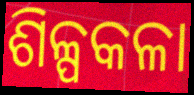
ଶିଳ୍ପକଳା